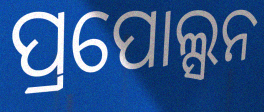
ପ୍ରପୋଲ୍ସନ